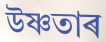
উষ্ণতাৰ